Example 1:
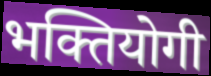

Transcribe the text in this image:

भक्तियोगी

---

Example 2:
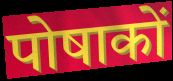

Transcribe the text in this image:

पोषाकों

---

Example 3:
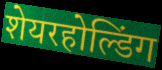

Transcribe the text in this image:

शेयरहोल्डिंग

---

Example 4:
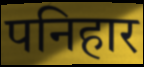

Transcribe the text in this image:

पनिहार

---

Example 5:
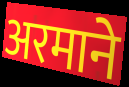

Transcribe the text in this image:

अरमाने